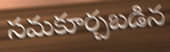
సమకూర్చబడిన